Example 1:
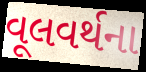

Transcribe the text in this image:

વૂલવર્થના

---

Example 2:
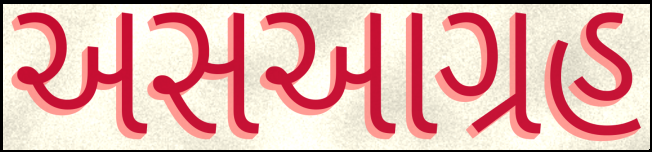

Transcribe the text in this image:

અસઆગ્રહ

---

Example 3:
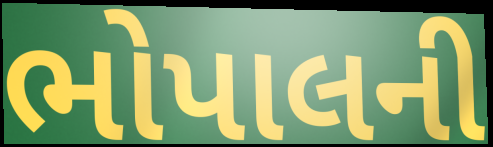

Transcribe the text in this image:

ભોપાલની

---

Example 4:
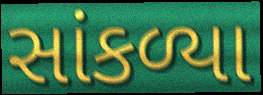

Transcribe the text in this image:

સાંકળ્યા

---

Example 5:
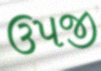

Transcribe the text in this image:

ઉપજી